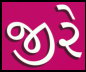
જીરે